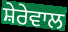
ਸ਼ੇਰੇਵਾਲ